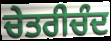
ਚੇਤਰੀਚੰਦ